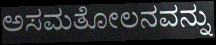
ಅಸಮತೋಲನವನ್ನು